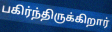
பகிர்ந்திருக்கிறார்